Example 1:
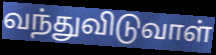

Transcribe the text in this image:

வந்துவிடுவாள்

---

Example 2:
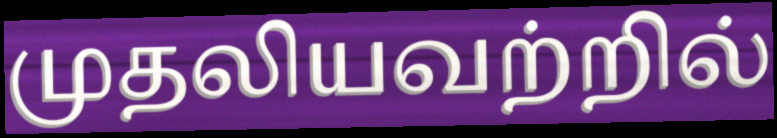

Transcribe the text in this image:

முதலியவற்றில்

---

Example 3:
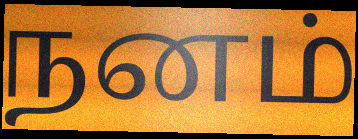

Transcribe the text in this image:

நனம்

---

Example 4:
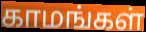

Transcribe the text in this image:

காமங்கள்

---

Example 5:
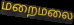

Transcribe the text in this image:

மறைமலை